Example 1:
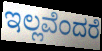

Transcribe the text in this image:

ಇಲ್ಲವೆಂದರೆ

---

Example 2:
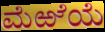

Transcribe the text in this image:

ಮೆಱೆಯೆ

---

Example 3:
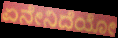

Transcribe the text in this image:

ಏನೇನಿದೆಯೋ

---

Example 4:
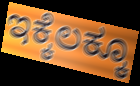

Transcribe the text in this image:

ಇಕ್ಕೆಲಕ್ಕೂ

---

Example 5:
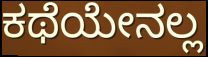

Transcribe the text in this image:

ಕಥೆಯೇನಲ್ಲ